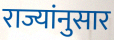
राज्यांनुसार